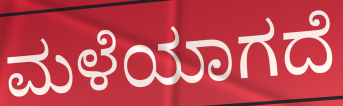
ಮಳೆಯಾಗದೆ